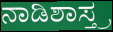
ನಾಡಿಶಾಸ್ತ್ರ